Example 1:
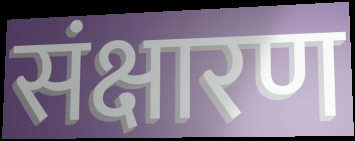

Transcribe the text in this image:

संक्षारण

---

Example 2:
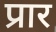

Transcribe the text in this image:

प्रार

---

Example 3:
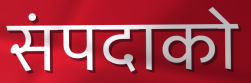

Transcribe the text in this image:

संपदाको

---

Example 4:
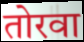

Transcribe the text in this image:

तोरवा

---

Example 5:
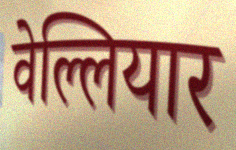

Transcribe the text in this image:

वेल्लियार